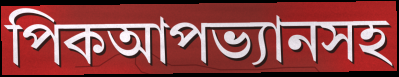
পিকআপভ্যানসহ